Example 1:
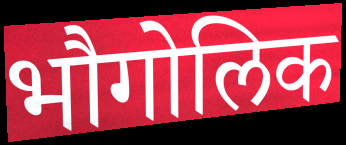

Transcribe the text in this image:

भौगोलिक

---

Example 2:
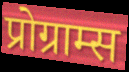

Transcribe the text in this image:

प्रोग्राम्स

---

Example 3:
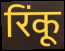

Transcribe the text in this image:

रिंकू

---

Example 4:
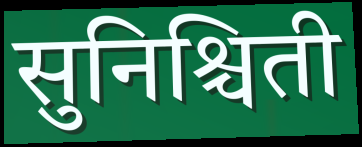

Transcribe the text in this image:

सुनिश्चिती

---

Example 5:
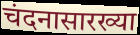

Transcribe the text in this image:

चंदनासारख्या